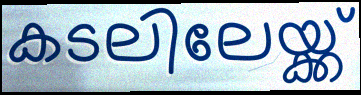
കടലിലേയ്ക്ക്